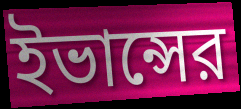
ইভান্সের